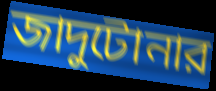
জাদুটোনার